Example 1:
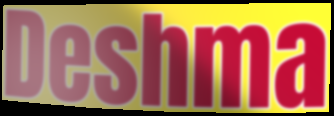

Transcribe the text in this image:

Deshma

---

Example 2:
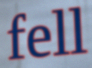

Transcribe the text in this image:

fell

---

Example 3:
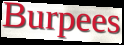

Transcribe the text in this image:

Burpees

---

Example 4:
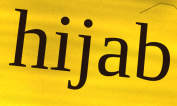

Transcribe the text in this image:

hijab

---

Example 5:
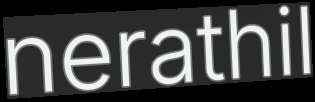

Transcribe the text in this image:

nerathil